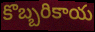
కొబ్బరికాయ